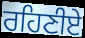
ਰਹਿਣੀਏ